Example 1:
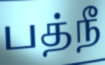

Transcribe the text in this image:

பத்நீ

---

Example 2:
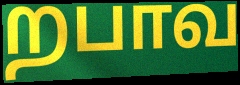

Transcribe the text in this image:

றபாவ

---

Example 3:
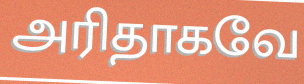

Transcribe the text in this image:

அரிதாகவே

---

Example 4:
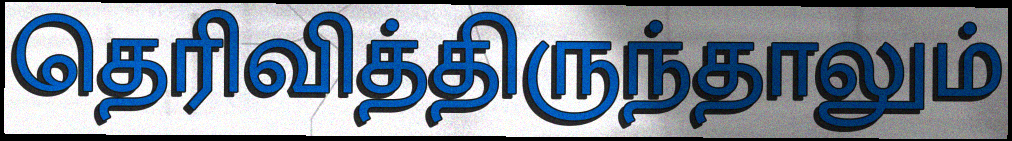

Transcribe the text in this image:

தெரிவித்திருந்தாலும்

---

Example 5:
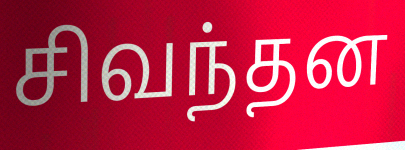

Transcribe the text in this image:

சிவந்தன